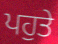
ਪਹੁਤੇ